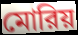
মোরিয়